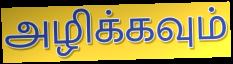
அழிக்கவும்